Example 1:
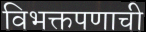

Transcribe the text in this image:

विभक्तपणाची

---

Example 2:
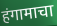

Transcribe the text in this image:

हंगामाचा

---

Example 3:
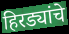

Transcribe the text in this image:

हिरड्यांचे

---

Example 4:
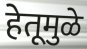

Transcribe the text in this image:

हेतूमुळे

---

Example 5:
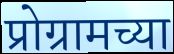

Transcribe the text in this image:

प्रोग्रामच्या